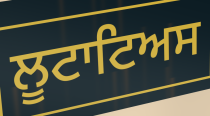
ਲੂਟਾਟਿਅਸ